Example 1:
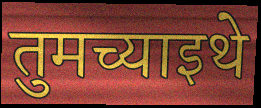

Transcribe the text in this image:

तुमच्याइथे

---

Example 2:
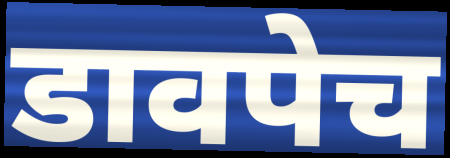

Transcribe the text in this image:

डावपेच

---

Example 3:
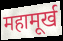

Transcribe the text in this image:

महामूर्ख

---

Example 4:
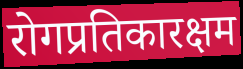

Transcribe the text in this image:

रोगप्रतिकारक्षम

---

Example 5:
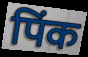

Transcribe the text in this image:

पिंक